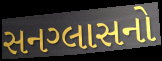
સનગ્લાસનો